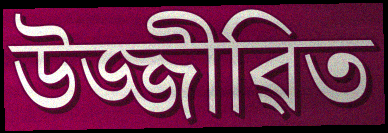
উজ্জীৱিত